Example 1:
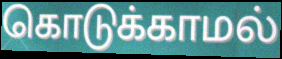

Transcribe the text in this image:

கொடுக்காமல்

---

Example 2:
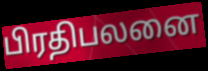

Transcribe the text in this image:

பிரதிபலனை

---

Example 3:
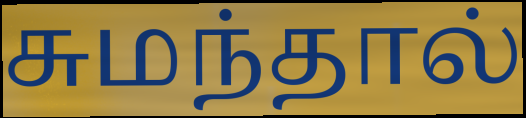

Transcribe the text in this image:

சுமந்தால்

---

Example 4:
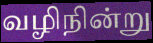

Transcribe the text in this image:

வழிநின்று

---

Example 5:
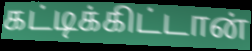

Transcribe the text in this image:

கட்டிக்கிட்டான்